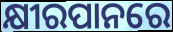
କ୍ଷୀରପାନରେ